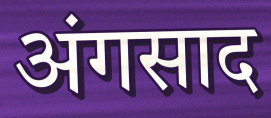
अंगसाद